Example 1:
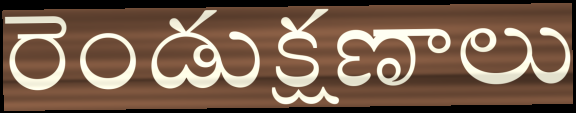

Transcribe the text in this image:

రెండుక్షణాలు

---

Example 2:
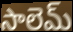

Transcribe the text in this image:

సాలెమ్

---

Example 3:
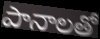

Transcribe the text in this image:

పానాలతో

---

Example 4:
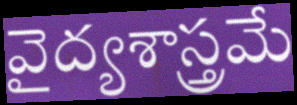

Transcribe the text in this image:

వైద్యశాస్త్రమే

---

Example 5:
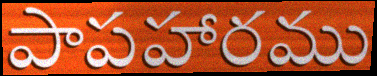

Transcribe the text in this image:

పాపహారము